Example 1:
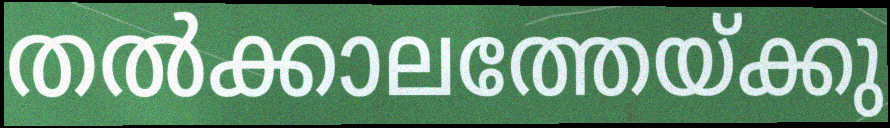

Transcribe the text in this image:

തൽക്കാലത്തേയ്ക്കു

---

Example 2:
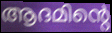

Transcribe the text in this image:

ആദമിന്റെ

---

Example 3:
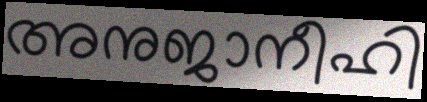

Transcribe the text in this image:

അനുജാനീഹി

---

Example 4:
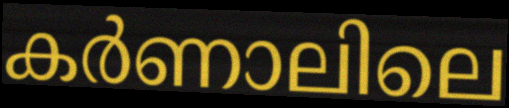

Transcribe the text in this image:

കർണാലിലെ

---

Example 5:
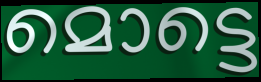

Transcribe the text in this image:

മൊട്ടെ